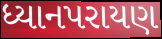
ધ્યાનપરાયણ